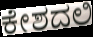
ಕೇಶದಲಿ